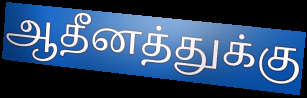
ஆதீனத்துக்கு